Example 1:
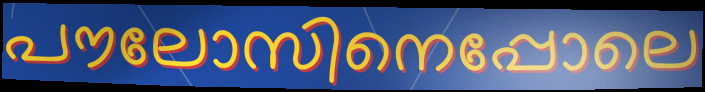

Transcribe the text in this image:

പൗലോസിനെപ്പോലെ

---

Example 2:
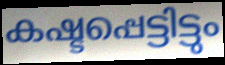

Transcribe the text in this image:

കഷ്ടപ്പെട്ടിട്ടും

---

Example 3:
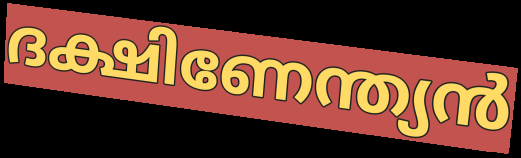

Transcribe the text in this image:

ദക്ഷിണേന്ത്യൻ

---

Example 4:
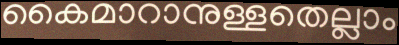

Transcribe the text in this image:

കൈമാറാനുള്ളതെല്ലാം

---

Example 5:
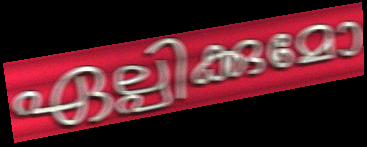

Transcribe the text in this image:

ഏല്പിക്കുമോ